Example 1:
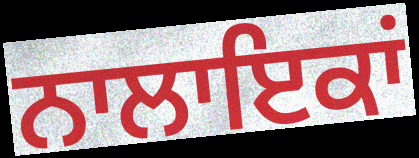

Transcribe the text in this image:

ਨਾਲਾਇਕਾਂ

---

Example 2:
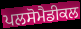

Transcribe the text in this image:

ਪਲਸੋਮੈਡੀਕਲ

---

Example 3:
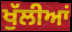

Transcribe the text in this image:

ਖੁੱਲੀਆਂ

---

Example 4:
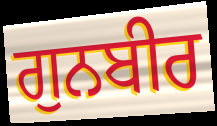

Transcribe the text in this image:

ਗੁਨਬੀਰ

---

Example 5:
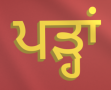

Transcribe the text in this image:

ਪੜ੍ਹਾਂ